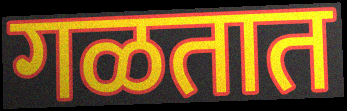
गळतात